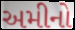
અમીનો